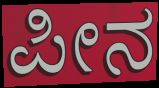
ಪೀನ